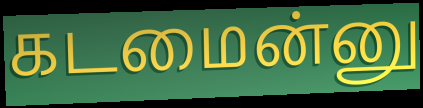
கடமைன்னு